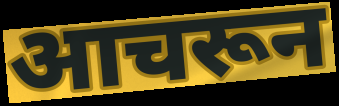
आचरून